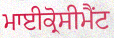
ਮਾਈਕ੍ਰੋਸੀਮੈਂਟ